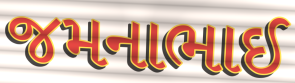
જમનાભાઈ